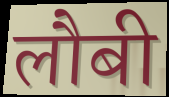
लौबी